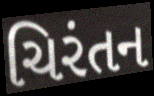
ચિરંતન